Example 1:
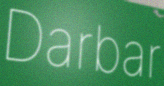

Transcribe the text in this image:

Darbar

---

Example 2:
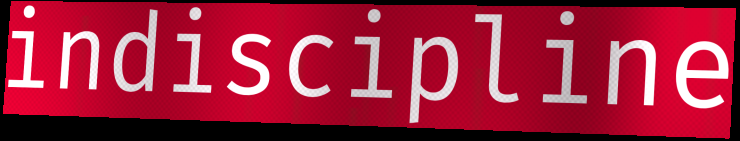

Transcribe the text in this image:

indiscipline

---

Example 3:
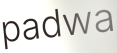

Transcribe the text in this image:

padwa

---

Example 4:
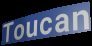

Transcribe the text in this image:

Toucan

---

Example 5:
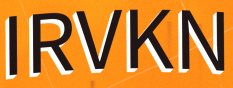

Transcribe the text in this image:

IRVKN